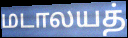
மடாலயத்